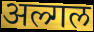
अल्गल